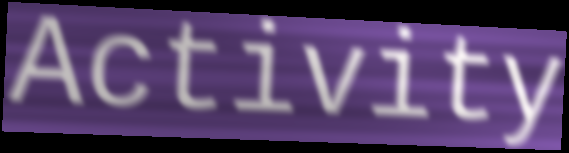
Activity